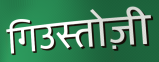
गिउस्तोज़ी